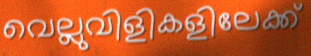
വെല്ലുവിളികളിലേക്ക്